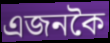
এজনকৈ